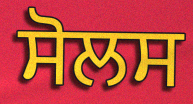
ਸੋਲਸ